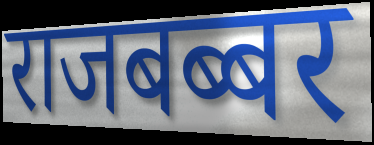
राजबब्बर